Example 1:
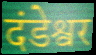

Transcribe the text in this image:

दंडेश्वर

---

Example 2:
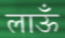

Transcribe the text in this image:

लाऊँ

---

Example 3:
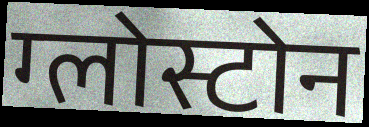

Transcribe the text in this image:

ग्लोस्टोन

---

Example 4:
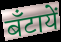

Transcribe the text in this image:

बँटायें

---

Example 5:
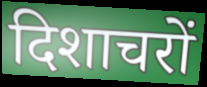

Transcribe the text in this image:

दिशाचरों